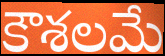
కౌశలమే